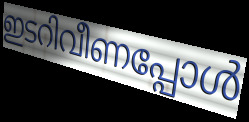
ഇടറിവീണപ്പോൾ